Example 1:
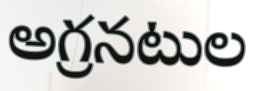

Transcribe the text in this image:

అగ్రనటుల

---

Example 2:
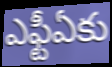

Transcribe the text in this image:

ఎఫ్టీఏకు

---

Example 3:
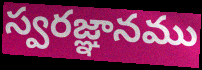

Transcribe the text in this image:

స్వరజ్ఞానము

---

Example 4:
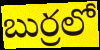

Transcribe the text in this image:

బుర్రలో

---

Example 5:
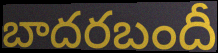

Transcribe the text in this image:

బాదరబందీ